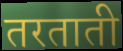
तरताती